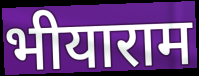
भीयाराम